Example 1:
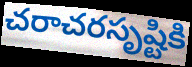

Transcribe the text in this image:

చరాచరసృష్టికి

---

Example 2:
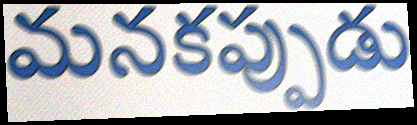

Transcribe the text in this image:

మనకప్పుడు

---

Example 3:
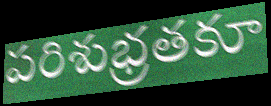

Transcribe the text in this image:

పరిశుభ్రతకూ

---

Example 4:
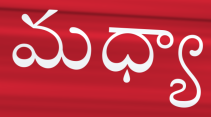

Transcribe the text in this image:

మధ్యా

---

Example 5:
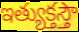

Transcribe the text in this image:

ఇత్యుక్తస్తౌ